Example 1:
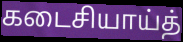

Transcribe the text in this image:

கடைசியாய்த்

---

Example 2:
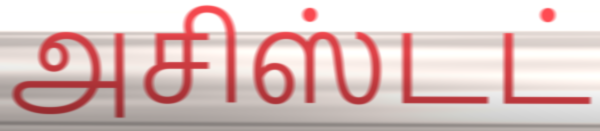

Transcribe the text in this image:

அசிஸ்டட்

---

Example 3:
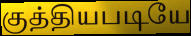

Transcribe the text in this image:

குத்தியபடியே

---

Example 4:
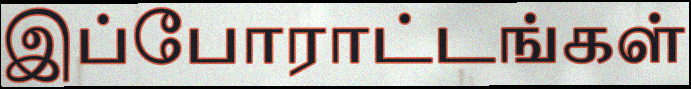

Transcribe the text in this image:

இப்போராட்டங்கள்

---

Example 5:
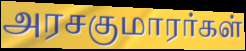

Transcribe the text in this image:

அரசகுமாரர்கள்